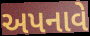
અપનાવે